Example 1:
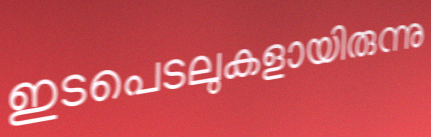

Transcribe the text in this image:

ഇടപെടലുകളായിരുന്നു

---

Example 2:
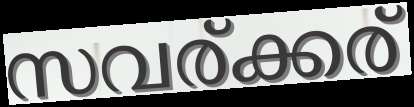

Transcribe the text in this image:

സവര്ക്കര്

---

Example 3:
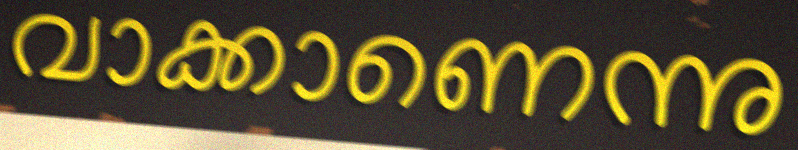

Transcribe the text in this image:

വാക്കാണെന്നു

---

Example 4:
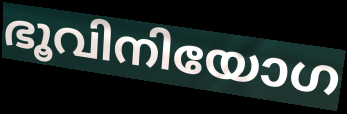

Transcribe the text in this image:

ഭൂവിനിയോഗ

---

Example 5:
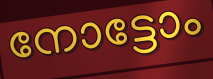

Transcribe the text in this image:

നോട്ടോം